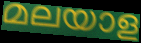
മലയാള